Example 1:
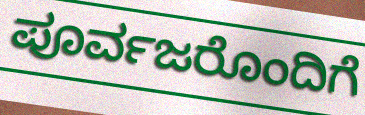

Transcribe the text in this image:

ಪೂರ್ವಜರೊಂದಿಗೆ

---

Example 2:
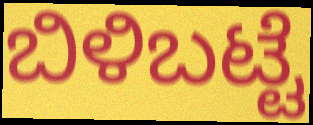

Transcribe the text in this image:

ಬಿಳಿಬಟ್ಟೆ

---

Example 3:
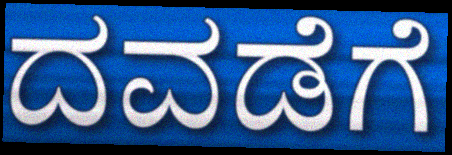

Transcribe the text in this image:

ದವಡೆಗೆ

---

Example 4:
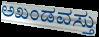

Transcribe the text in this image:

ಅಖಂಡವಸ್ತು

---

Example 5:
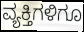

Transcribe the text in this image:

ವ್ಯಕ್ತಿಗಳಿಗೂ